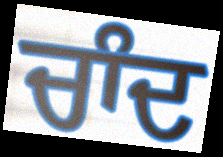
ਚਾੰਦ